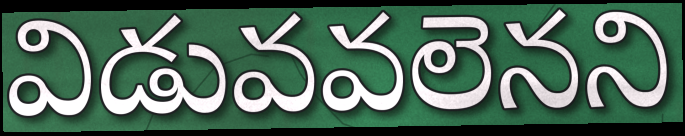
విడువవలెనని